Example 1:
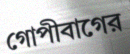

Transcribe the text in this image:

গোপীবাগের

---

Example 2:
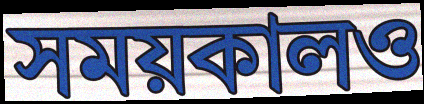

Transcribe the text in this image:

সময়কালও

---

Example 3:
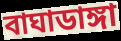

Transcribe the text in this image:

বাঘাডাঙ্গা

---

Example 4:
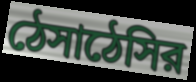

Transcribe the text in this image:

ঠেসাঠেসির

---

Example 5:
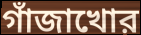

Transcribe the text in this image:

গাঁজাখোর